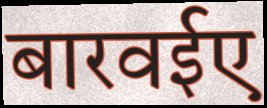
बारवईए